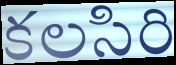
కలసిరి